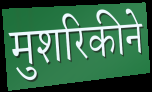
मुशरिकीने